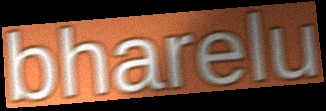
bharelu